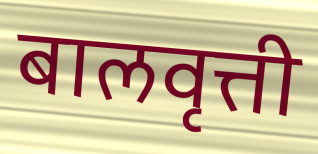
बालवृत्ती